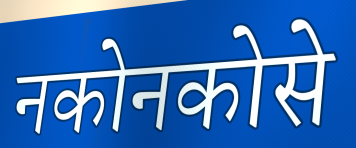
नकोनकोसे